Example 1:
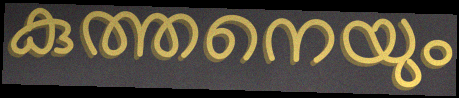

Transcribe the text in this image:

കുത്തനെയും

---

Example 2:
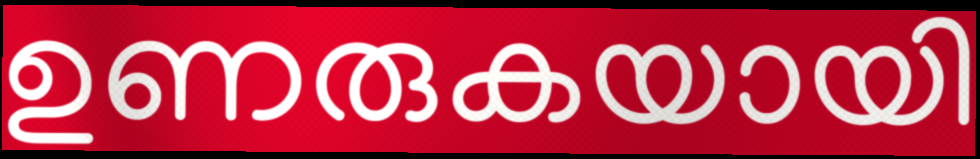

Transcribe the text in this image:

ഉണരുകയായി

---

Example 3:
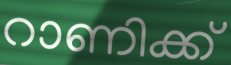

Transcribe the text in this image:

റാണിക്ക്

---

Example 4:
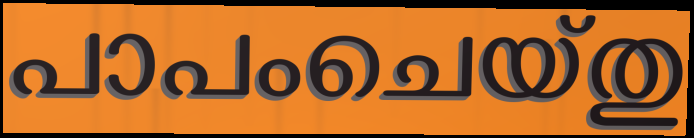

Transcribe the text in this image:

പാപംചെയ്തു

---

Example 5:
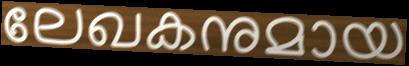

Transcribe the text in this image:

ലേഖകനുമായ